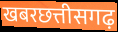
खबरछत्तीसगढ़